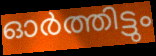
ഓർത്തിട്ടും